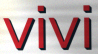
vivi